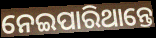
ନେଇପାରିଥାନ୍ତେ